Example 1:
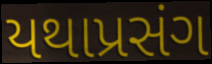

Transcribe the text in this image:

યથાપ્રસંગ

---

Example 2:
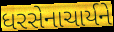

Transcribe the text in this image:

ધરસેનાચાર્યને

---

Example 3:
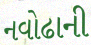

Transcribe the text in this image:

નવોઢાની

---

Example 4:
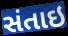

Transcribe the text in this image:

સંતાઇ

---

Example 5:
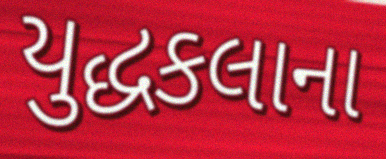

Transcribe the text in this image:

યુદ્ધકલાના